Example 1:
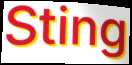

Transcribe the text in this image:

Sting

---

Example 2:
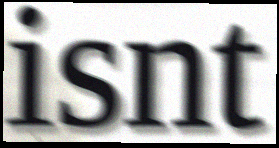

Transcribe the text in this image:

isnt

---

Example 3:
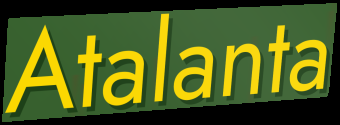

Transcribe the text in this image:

Atalanta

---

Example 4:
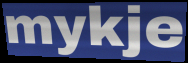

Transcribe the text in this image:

mykje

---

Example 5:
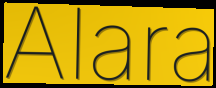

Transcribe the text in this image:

Alara